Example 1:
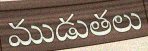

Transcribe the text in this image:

ముడుతలు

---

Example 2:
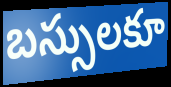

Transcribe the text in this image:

బస్సులకూ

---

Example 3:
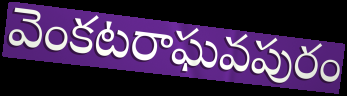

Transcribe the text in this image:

వెంకటరాఘవపురం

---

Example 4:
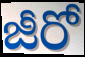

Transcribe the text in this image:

జీరో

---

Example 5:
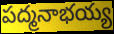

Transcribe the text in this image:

పద్మనాభయ్య